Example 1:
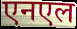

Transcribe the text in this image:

एनएल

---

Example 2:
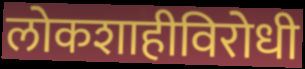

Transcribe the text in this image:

लोकशाहीविरोधी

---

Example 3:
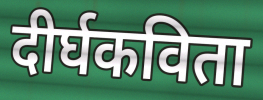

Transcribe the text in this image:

दीर्घकविता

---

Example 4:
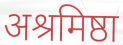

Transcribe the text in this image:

अश्रमिष्ठा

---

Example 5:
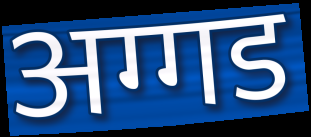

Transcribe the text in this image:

अग्गड